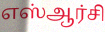
எஸ்ஆர்சி